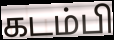
கடம்பி